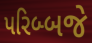
પરિબ્બજે